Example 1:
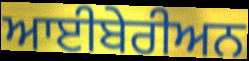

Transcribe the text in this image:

ਆਈਬੇਰੀਅਨ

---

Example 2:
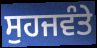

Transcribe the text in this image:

ਸੁਹਜਵੰਤੇ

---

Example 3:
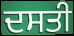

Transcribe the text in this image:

ਦਸਤੀ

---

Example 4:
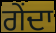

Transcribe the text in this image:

ਗੇਂਦਾ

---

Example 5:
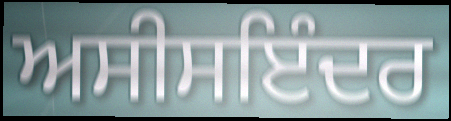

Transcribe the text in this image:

ਅਸੀਸਇੰਦਰ